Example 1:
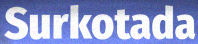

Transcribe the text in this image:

Surkotada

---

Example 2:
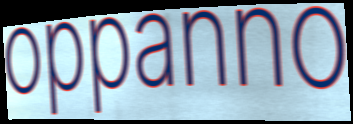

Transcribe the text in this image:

oppanno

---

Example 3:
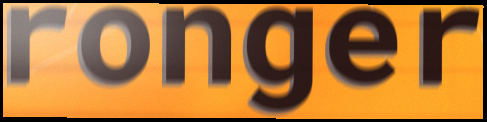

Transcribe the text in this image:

ronger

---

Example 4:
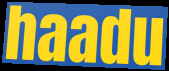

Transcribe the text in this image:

haadu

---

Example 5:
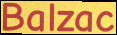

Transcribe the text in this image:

Balzac